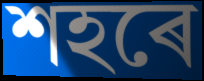
শহৰে